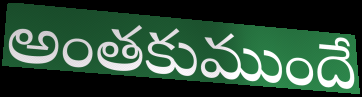
అంతకుముందే